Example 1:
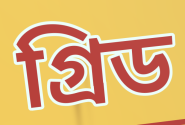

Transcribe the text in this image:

গ্রিড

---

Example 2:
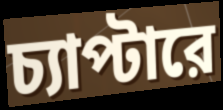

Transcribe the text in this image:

চ্যাপ্টারে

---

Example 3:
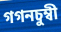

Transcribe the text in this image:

গগনচুম্বী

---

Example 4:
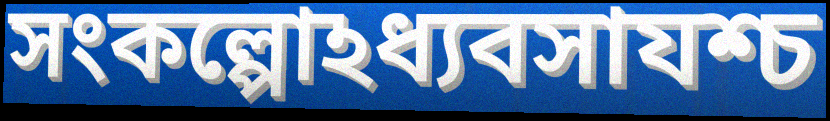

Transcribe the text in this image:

সংকল্পোঽধ্যবসাযশ্চ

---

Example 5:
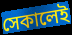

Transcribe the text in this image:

সেকালেই